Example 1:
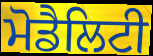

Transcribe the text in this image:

ਮੋਡੈਲਿਟੀ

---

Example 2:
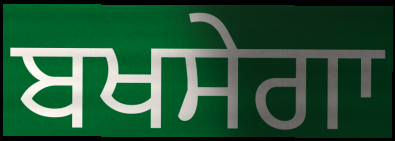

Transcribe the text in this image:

ਬਖਸੇਗਾ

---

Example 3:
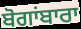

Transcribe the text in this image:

ਬੋਗਾਂਬਾਰਾ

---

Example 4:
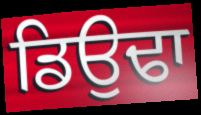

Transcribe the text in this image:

ਡਿਉਢਾ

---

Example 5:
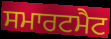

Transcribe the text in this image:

ਸਮਾਰਟਮੈਟ